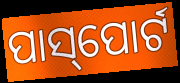
ପାସ୍‌ପୋର୍ଟ